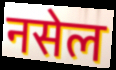
नसेल